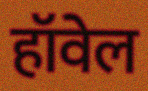
हॉवेल